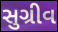
સુગ્રીવ